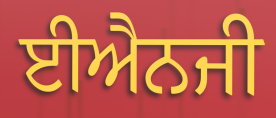
ਈਐਨਜੀ